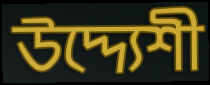
উদ্দ্যেশী